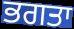
ਭਗਤਾ